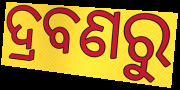
ଦ୍ରବଣରୁ